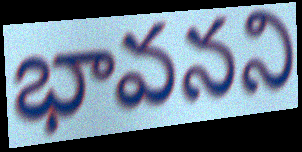
భావనని